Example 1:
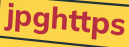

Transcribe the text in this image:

jpghttps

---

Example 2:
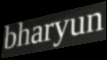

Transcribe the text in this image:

bharyun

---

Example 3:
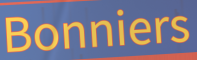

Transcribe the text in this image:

Bonniers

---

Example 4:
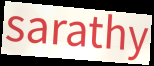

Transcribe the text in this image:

sarathy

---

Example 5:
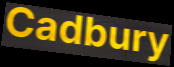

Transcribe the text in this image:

Cadbury